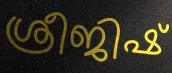
ശ്രീജിഷ്